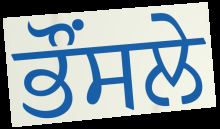
ਭੌਂਸਲੇ